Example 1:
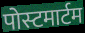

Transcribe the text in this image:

पोस्‍टमार्टम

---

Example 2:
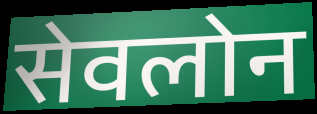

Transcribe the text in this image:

सेवलोन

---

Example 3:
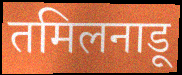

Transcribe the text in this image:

तमिलनाडू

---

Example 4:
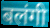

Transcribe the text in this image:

बलंगी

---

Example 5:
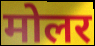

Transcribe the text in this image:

मोलर